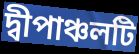
দ্বীপাঞ্চলটি